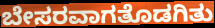
ಬೇಸರವಾಗತೊಡಗಿತು